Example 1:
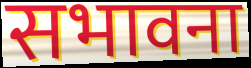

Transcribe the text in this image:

सभावना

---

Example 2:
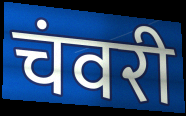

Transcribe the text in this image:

चंवरी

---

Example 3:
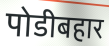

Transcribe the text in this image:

पोडीबहार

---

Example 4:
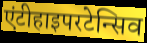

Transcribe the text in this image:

एंटीहाइपरटेन्सिव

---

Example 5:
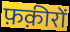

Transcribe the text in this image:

फ़क़ीरों